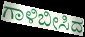
ಗಾಳಿಬೀಸಿದ